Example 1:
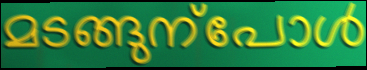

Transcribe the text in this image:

മടങ്ങുന്പോൾ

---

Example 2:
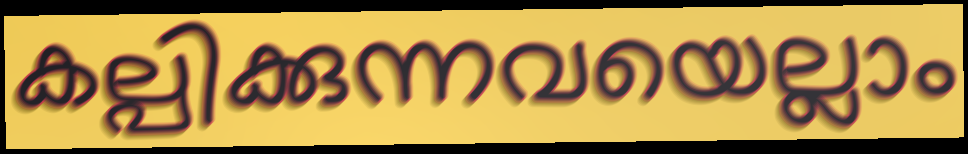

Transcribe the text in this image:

കല്പിക്കുന്നവയെല്ലാം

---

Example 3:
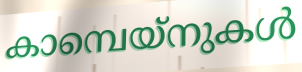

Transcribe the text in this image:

കാമ്പെയ്നുകൾ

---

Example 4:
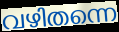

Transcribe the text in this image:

വഴിതന്നെ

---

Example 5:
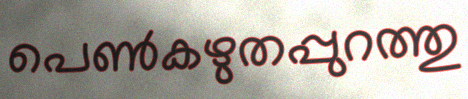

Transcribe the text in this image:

പെൺകഴുതപ്പുറത്തു